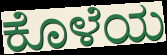
ಕೊಳೆಯ